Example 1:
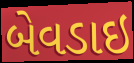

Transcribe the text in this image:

બેવડાઇ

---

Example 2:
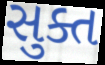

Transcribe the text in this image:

સુક્ત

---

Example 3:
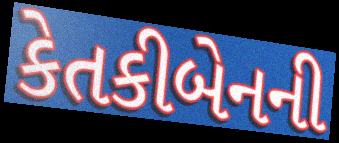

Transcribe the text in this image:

કેતકીબેનની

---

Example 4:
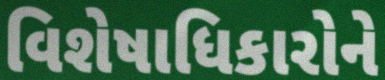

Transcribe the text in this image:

વિશેષાધિકારોને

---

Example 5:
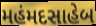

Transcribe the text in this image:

મહંમદસાહેબ